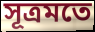
সূত্ৰমতে